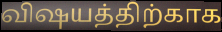
விஷயத்திற்காக